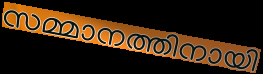
സമ്മാനത്തിനായി